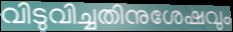
വിടുവിച്ചതിനുശേഷവും